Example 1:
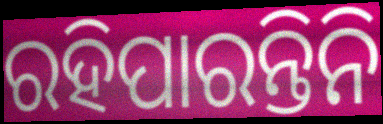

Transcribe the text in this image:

ରହିପାରନ୍ତିନି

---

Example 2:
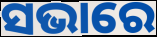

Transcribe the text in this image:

ସଭାରେ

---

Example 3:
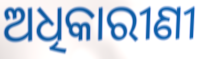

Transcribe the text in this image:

ଅଧିକାରୀଣୀ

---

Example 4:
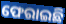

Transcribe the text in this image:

ଫେରାଇଛି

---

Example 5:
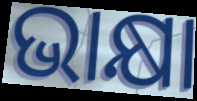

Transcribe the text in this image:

ଭାକ୍ଷା